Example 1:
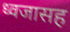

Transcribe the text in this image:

ध्वजासह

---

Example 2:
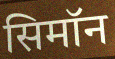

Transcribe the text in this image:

सिमॉन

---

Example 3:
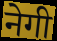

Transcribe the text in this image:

नेगी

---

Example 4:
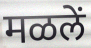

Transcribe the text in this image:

मळलें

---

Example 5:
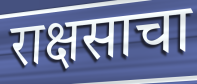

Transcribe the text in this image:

राक्षसाचा